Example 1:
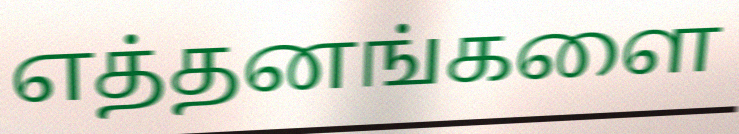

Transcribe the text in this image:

எத்தனங்களை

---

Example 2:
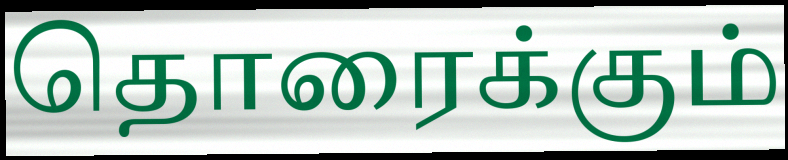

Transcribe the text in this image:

தொரைக்கும்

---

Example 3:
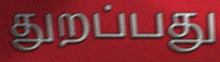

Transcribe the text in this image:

துறப்பது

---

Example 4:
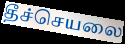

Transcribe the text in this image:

தீச்செயலை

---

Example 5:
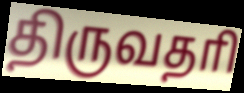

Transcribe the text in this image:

திருவதரி